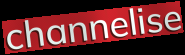
channelise